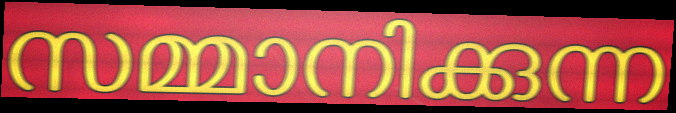
സമ്മാനിക്കുന്ന